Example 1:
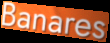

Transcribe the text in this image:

Banares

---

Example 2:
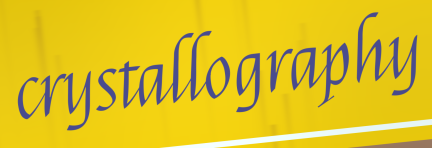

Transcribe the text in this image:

crystallography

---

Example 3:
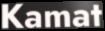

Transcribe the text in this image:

Kamat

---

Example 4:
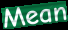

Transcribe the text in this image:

Mean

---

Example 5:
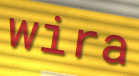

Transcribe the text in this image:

wira